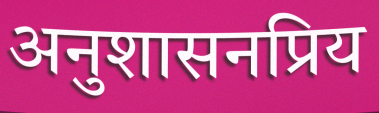
अनुशासनप्रिय